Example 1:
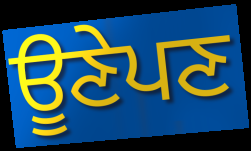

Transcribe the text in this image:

ਊਣੇਪਣ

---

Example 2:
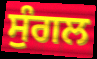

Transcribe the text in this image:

ਸੁੰਗਲ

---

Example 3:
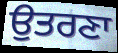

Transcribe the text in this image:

ਉਤਰਣਾ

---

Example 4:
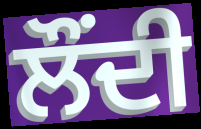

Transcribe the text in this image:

ਲੌਂਦੀ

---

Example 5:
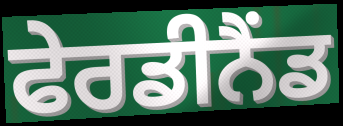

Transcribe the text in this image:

ਫੇਰਡੀਨੈਂਡ